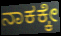
ನಾಕಕ್ಕೇ